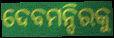
ଦେବମନ୍ଦିରକୁ